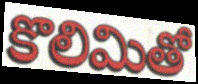
కొలిమితో